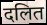
दलित